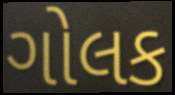
ગોલક